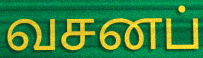
வசனப்